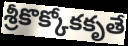
శ్రీకొక్కోకకృతే